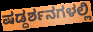
ಷಡ್ದರ್ಶನಗಳಲ್ಲಿ